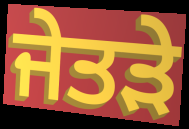
ਜੇਤੜੇ